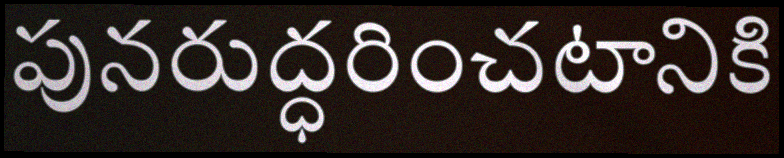
పునరుద్ధరించటానికి